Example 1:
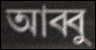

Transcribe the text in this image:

আব্বু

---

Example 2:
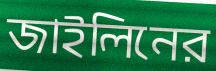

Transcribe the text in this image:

জাইলিনের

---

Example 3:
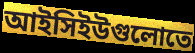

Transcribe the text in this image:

আইসিইউগুলোতে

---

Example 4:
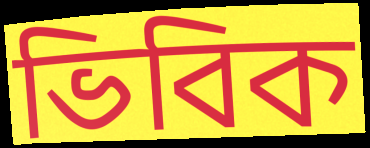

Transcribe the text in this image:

ভিবিক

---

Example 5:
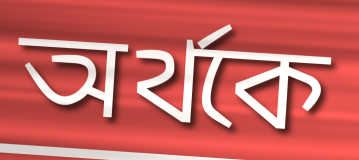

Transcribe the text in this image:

অর্থকে